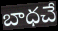
బాధచే